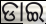
ଡାଇ